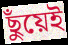
ছুঁয়েই